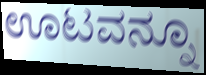
ಊಟವನ್ನೂ